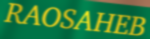
RAOSAHEB